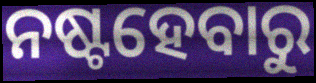
ନଷ୍ଟହେବାରୁ